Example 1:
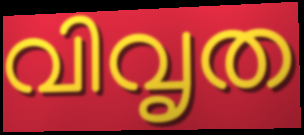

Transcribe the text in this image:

വിവൃത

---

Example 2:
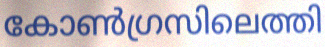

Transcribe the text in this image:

കോൺഗ്രസിലെത്തി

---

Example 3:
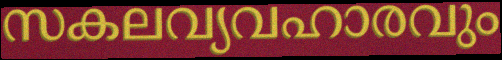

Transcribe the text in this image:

സകലവ്യവഹാരവും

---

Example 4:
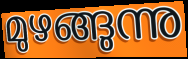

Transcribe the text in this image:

മുഴങ്ങുന്നു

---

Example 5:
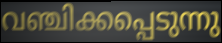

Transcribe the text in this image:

വഞ്ചിക്കപ്പെടുന്നു